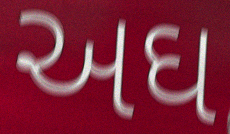
અઘ